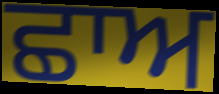
ਛਾਅ